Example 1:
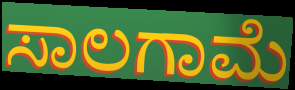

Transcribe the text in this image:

ಸಾಲಗಾಮೆ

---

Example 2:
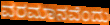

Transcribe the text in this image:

ವರಮಾನವೆಂದು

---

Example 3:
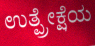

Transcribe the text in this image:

ಉತ್ಪ್ರೇಕ್ಷೆಯ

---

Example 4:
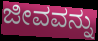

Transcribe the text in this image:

ಜೀವವನ್ನು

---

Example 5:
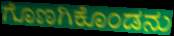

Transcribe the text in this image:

ಗೊಣಗಿಕೊಂಡನು